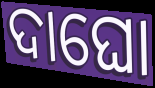
ଦାଘୋ